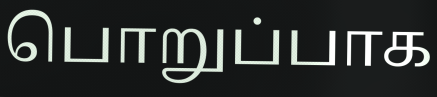
பொறுப்பாக